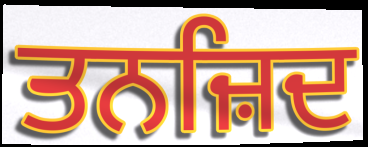
ਤਨਜ਼ਿਦ